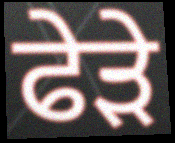
ਫੇੜੇ